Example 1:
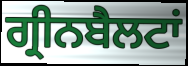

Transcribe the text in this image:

ਗ੍ਰੀਨਬੈਲਟਾਂ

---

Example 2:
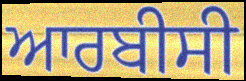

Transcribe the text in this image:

ਆਰਬੀਸੀ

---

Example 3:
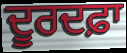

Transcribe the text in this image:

ਦੂਰਦਫ਼ਾ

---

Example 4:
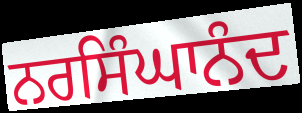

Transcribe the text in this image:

ਨਰਸਿੰਘਾਨੰਦ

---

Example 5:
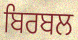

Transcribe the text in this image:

ਬਿਰਬਲ